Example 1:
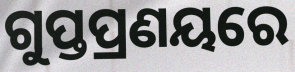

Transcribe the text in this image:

ଗୁପ୍ତପ୍ରଣୟରେ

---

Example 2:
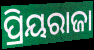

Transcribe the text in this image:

ପ୍ରିୟରାଜା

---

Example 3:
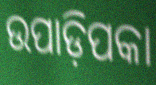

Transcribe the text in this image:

ଉପାଡ଼ିପକା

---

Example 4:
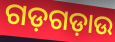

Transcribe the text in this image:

ଗଡ଼ଗଡ଼ାଉ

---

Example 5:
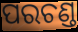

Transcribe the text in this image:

ପରଚଣ୍ଡ